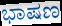
ಭಾಷಣ